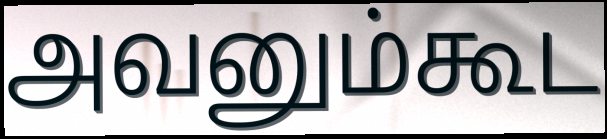
அவனும்கூட